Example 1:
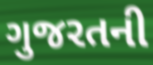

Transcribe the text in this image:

ગુજરતની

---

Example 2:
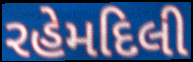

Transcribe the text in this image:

રહેમદિલી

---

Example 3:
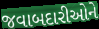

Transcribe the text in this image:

જવાબદારીઓને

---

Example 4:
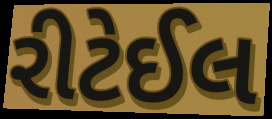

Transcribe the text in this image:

રીટેઈલ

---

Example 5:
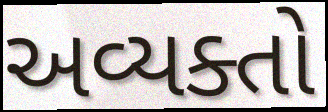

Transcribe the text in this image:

અવ્યક્તો